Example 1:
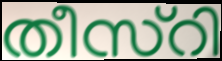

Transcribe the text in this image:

തീസ്റി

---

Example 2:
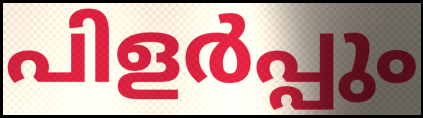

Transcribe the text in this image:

പിളർപ്പും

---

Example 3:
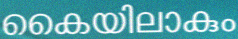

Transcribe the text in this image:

കൈയിലാകും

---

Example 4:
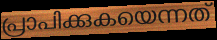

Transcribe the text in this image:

പ്രാപിക്കുകയെന്നത്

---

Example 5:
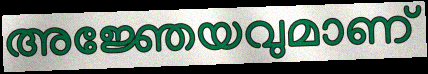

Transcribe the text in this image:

അജ്ഞേയവുമാണ്